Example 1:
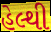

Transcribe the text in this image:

હેલ્થી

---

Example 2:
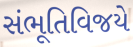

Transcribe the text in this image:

સંભૂતિવિજયે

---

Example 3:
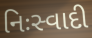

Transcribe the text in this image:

નિઃસ્વાદી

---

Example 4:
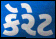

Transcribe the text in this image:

કૅરેટ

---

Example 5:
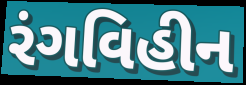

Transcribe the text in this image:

રંગવિહીન